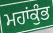
ਮਹਾਂਕੁੰਭ